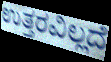
ಉತ್ತರವಿಲ್ಲದೆ